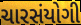
ચારસંયોગી